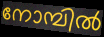
നോമ്പിൽ